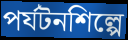
পর্যটনশিল্পে